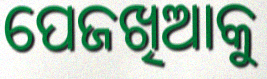
ପେଜଖିଆକୁ